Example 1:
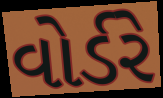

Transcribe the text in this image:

વોર્ડરે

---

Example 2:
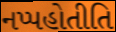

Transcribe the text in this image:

નપ્પહોતીતિ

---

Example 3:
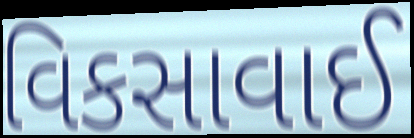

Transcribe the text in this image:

વિકસાવાઈ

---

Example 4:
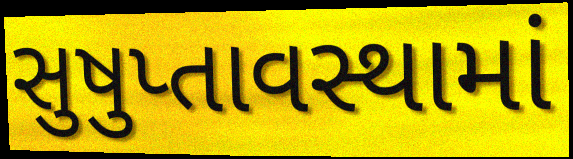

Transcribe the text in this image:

સુષુપ્તાવસ્થામાં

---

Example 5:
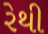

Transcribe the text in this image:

રેથી